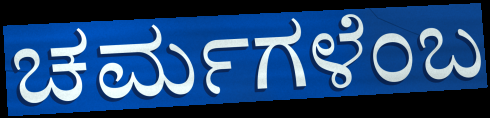
ಚರ್ಮಗಳೆಂಬ